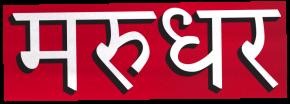
मरुधर